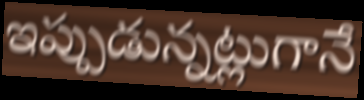
ఇప్పుడున్నట్లుగానే